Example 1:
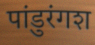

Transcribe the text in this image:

पांडुरंगश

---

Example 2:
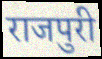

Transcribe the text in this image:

राजपुरी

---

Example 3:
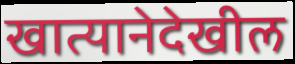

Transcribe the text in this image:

खात्यानेदेखील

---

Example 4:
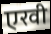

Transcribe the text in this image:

एरवी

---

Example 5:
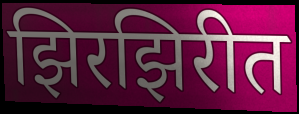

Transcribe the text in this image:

झिरझिरीत